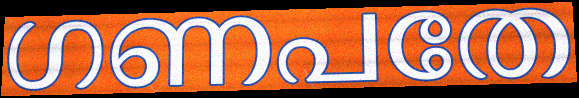
ഗണപതേ